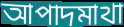
আপাদমাথা